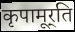
कृपामूर्ति